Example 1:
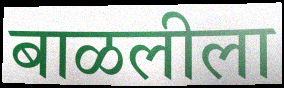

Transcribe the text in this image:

बाळलीला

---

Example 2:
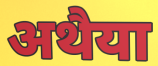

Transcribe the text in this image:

अथैया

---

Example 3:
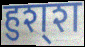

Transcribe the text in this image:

हुश्श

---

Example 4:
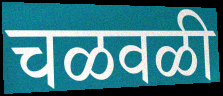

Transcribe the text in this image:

चळवळी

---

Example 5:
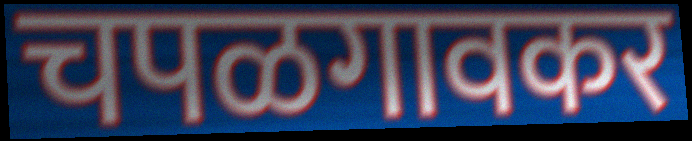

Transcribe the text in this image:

चपळगावकर